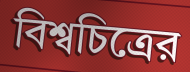
বিশ্বচিত্রের